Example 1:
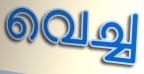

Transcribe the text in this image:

വെച്ച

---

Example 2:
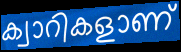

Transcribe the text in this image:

ക്വാറികളാണ്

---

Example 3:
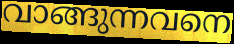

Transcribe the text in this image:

വാങ്ങുന്നവനെ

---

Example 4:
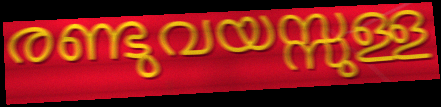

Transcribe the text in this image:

രണ്ടുവയസ്സുള്ള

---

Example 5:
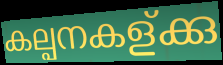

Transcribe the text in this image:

കല്പനകള്ക്കു